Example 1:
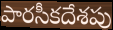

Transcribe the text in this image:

పారసీకదేశపు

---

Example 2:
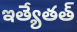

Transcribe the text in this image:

ఇత్యేతత్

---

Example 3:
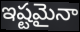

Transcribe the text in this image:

ఇష్టమైనా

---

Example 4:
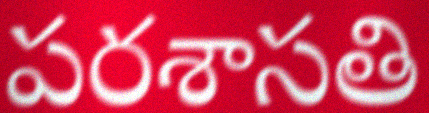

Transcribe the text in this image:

పరశాసతి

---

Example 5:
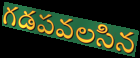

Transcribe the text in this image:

గడపవలసిన